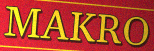
MAKRO